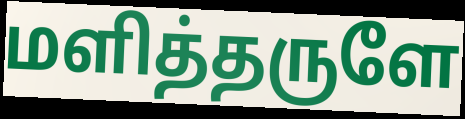
மளித்தருளே